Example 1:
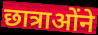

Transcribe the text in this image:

छात्राओंने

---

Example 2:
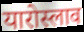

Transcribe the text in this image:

यारोस्लाव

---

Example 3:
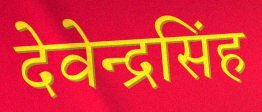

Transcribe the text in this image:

देवेन्द्रसिंह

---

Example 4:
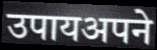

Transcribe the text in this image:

उपायअपने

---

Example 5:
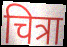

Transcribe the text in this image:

चित्रा